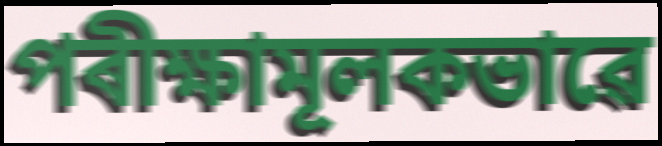
পৰীক্ষামূলকভাৱে